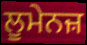
ਲੂਮੇਨਜ਼